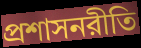
প্রশাসনরীতি